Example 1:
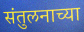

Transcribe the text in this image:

संतुलनाच्या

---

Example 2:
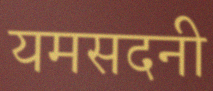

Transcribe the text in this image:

यमसदनी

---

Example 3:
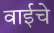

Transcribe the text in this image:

वाईचे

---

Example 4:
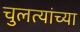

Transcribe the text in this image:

चुलत्यांच्या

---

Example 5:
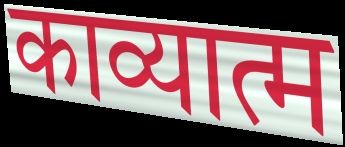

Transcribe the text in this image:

काव्यात्म